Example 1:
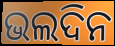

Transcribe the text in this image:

ଭଲଦିନ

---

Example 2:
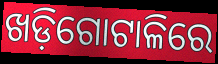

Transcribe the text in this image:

ଖଡ଼ିଗୋଟାଳିରେ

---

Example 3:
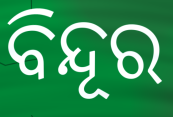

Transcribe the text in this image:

ବିନ୍ଦୂର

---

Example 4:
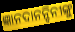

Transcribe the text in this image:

ଜ୍ଞାନଦାନନ୍ଦିନୀଙ୍କୁ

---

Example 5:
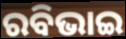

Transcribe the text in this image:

ରବିଭାଇ